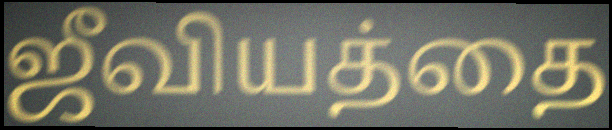
ஜீவியத்தை